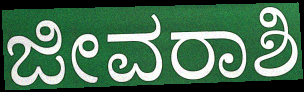
ಜೀವರಾಶಿ